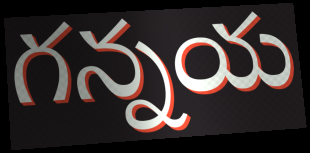
గన్నయ